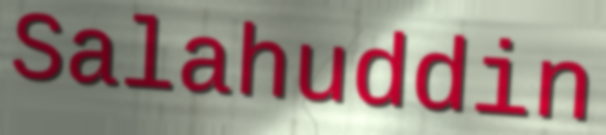
Salahuddin